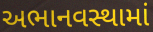
અભાનવસ્થામાં